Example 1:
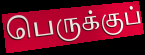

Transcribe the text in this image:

பெருக்குப்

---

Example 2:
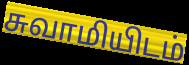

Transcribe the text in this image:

சுவாமியிடம்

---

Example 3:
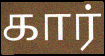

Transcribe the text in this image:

கார்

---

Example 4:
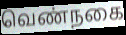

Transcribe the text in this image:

வெண்நகை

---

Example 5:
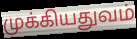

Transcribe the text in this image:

முக்கியதுவம்